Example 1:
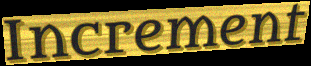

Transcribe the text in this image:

Increment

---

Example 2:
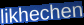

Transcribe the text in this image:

likhechen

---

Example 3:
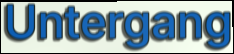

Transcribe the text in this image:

Untergang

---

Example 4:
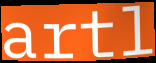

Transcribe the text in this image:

artl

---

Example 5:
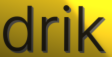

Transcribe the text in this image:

drik